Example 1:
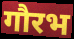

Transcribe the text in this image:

गौरभ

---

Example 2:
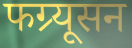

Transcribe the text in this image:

फग्र्यूसन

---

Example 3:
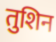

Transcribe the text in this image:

तुशिन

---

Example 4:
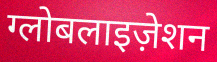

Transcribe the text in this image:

ग्लोबलाइज़ेशन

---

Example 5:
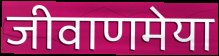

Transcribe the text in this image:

जीवाणमेया